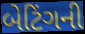
બેટિંગની